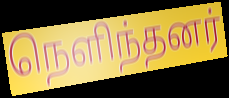
நெளிந்தனர்